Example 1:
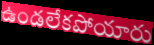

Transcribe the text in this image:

ఉండలేకపోయారు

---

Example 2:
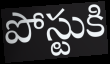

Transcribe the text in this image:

పోస్టుకి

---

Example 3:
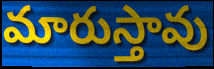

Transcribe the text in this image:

మారుస్తావు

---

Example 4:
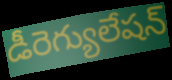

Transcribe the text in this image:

డీరెగ్యులేషన్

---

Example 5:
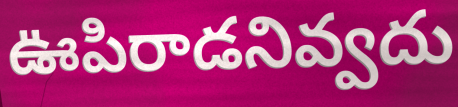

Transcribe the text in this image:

ఊపిరాడనివ్వదు